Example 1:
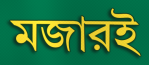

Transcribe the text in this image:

মজারই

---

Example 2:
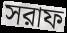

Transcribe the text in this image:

সরাফ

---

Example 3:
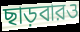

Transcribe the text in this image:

ছাড়বারও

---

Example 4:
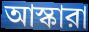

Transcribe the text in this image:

আস্কারা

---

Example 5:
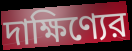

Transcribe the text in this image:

দাক্ষিণ্যের